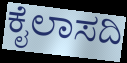
ಕೈಲಾಸದಿ